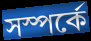
সস্পর্কে